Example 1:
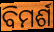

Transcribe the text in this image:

ବିମର୍ଶ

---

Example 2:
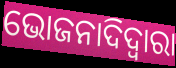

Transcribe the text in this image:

ଭୋଜନାଦିଦ୍ୱାରା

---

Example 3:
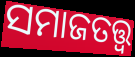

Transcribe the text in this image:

ସମାଜତତ୍ତ୍ୱ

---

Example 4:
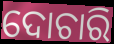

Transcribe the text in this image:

ଦୋଚାରି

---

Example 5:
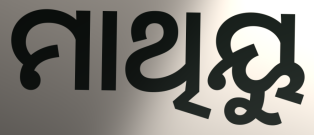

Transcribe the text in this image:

ମାଥିୟୁ